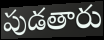
పుడతారు